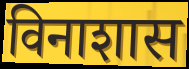
विनाशास